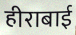
हीराबाई